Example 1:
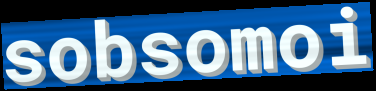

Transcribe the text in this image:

sobsomoi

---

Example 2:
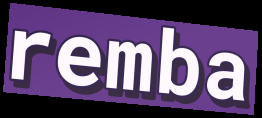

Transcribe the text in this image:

remba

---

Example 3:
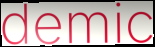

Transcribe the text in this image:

demic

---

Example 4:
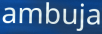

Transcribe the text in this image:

ambuja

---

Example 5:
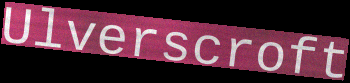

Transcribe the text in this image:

Ulverscroft